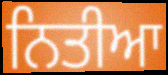
ਨਿਤੀਆ